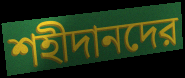
শহীদানদের